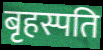
बृहस्पति